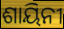
ଶାୟିନୀ